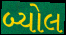
બ્યોલ